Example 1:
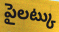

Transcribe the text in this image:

పైలట్కు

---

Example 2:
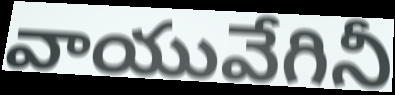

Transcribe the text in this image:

వాయువేగినీ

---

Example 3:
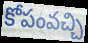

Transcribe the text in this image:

కోపంవచ్చి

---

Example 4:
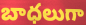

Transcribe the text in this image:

బాధలుగా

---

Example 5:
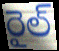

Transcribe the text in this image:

రైల్